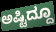
ಅಷ್ಟಿದ್ದೂ